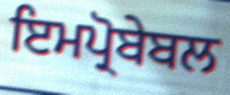
ਇਮਪ੍ਰੋਬੇਬਲ